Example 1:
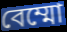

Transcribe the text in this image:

বেম্মো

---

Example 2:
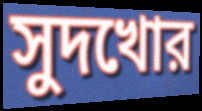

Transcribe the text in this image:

সুদখোর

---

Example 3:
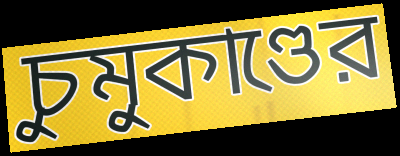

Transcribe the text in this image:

চুমুকাণ্ডের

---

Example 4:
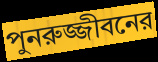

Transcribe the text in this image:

পুনরুজ্জীবনের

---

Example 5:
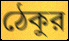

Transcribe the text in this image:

ঠেকুর